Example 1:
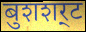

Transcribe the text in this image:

बुशशर्ट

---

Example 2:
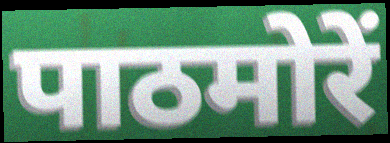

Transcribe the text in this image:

पाठमोरें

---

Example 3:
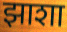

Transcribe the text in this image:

झाशा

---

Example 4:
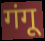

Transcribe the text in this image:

गंगू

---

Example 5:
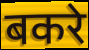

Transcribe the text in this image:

बकरे